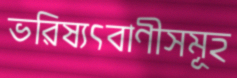
ভৱিষ্যৎবাণীসমূহ